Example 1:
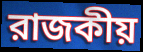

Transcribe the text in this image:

রাজকীয়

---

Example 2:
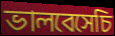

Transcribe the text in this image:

ভালবেসেচি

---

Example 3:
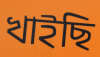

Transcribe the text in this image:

খাইছি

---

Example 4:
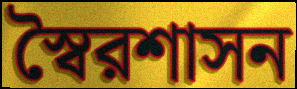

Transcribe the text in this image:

স্বৈরশাসন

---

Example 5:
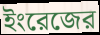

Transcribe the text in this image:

ইংরেজের